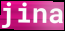
jina